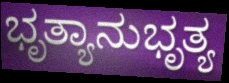
ಭೃತ್ಯಾನುಭೃತ್ಯ